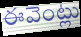
ఈవెంట్లు